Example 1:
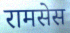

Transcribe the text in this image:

रामसेस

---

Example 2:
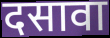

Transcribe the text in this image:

दसावा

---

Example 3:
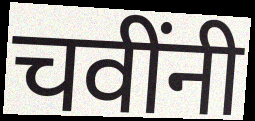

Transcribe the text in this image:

चवींनी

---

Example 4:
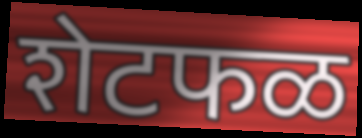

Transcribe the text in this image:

शेटफळ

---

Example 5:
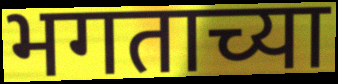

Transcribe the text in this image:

भगताच्या